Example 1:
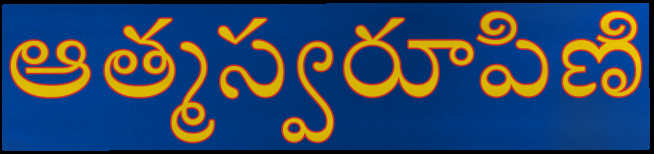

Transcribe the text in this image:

ఆత్మస్వరూపిణి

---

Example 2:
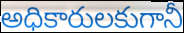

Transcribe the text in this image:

అధికారులకుగానీ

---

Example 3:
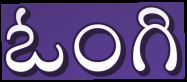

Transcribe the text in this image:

ఓంగి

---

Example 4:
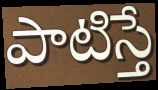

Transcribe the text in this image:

పాటిస్తే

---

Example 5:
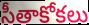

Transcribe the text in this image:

సీతాకోకలు